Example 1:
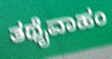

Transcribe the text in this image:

ತಥೈವಾಹಂ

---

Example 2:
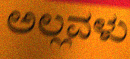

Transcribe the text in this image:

ಅಲ್ಲವಳು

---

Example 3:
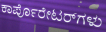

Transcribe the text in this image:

ಕಾರ್ಪೊರೇಟರ್‌ಗಳು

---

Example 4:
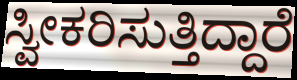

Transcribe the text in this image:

ಸ್ವೀಕರಿಸುತ್ತಿದ್ದಾರೆ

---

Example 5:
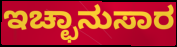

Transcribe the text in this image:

ಇಚ್ಛಾನುಸಾರ